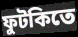
ফুটকিতে